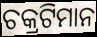
ଚକ୍ରଟିମାନ